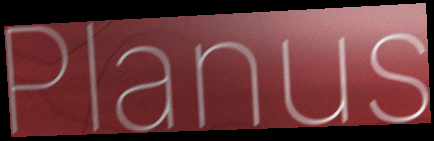
Planus